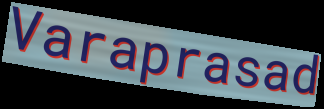
Varaprasad